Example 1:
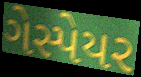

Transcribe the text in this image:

ગેસ્પેયર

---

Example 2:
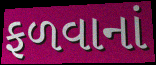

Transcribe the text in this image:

ફળવાનાં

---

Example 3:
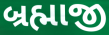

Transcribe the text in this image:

બ્રહ્માજી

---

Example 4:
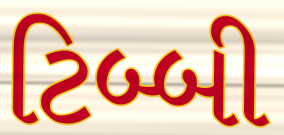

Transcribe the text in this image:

ટિબ્બી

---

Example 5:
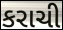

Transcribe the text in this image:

કરાચી